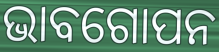
ଭାବଗୋପନ